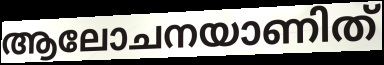
ആലോചനയാണിത്